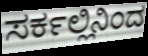
ಸರ್ಕಲ್ಲಿನಿಂದ